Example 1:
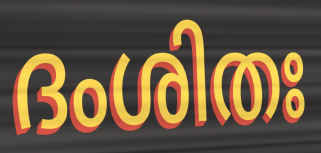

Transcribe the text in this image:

ദംശിതഃ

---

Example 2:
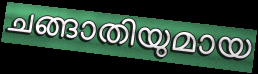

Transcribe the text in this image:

ചങ്ങാതിയുമായ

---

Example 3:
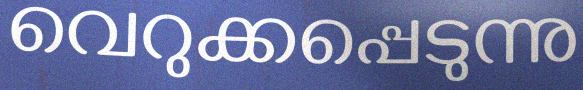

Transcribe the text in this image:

വെറുക്കപ്പെടുന്നു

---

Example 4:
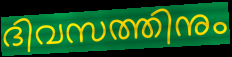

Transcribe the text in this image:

ദിവസത്തിനും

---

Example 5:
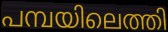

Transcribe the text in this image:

പമ്പയിലെത്തി